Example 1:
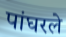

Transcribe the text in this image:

पांघरले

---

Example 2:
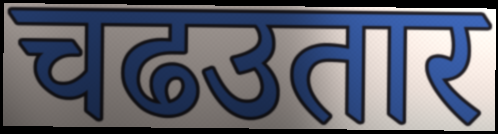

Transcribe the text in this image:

चढउतार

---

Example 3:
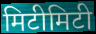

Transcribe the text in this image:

मिटीमिटी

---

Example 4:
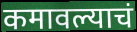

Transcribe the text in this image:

कमावल्याचं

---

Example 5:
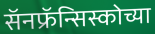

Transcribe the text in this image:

सॅनफ्रॅन्सिस्कोच्या